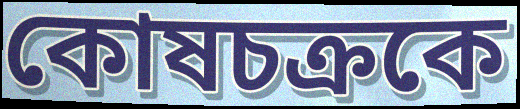
কোষচক্রকে